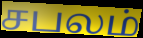
சபலம்